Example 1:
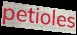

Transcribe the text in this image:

petioles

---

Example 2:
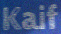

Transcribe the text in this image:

Kaif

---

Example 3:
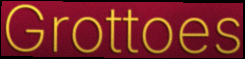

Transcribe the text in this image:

Grottoes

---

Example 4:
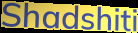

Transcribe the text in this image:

Shadshiti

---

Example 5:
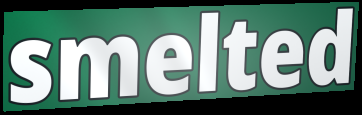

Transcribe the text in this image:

smelted